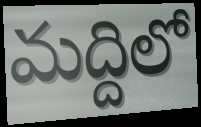
మద్దిలో